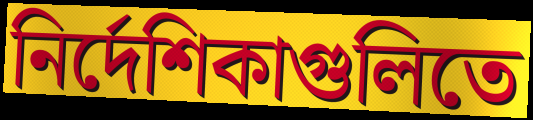
নির্দেশিকাগুলিতে